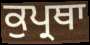
ਕੁਪ੍ਰਥਾ